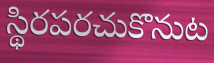
స్థిరపరచుకొనుట